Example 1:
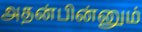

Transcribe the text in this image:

அதன்பின்னும்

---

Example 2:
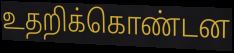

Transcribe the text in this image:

உதறிக்கொண்டன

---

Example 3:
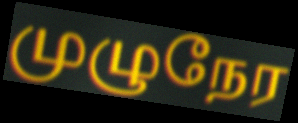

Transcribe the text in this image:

முழுநேர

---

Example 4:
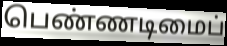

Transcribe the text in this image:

பெண்ணடிமைப்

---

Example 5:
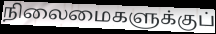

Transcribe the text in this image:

நிலைமைகளுக்குப்